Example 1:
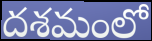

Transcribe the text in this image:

దశమంలో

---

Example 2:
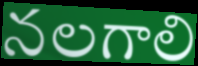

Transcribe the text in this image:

నలగాలి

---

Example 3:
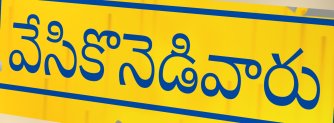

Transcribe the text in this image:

వేసికొనెడివారు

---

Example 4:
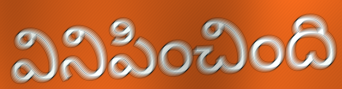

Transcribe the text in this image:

వినిపించింది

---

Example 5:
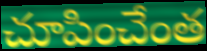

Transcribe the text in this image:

చూపించేంత